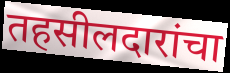
तहसीलदारांचा